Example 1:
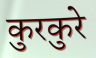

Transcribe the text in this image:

कुरकुरे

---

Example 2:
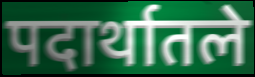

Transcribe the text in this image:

पदार्थातले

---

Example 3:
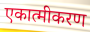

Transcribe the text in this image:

एकात्मीकरण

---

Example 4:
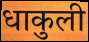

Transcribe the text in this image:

धाकुली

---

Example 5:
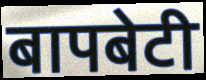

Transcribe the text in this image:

बापबेटी